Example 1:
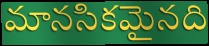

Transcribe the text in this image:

మానసికమైనది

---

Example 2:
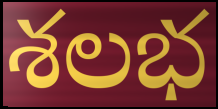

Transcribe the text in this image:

శలభ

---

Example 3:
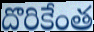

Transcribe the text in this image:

దొరికేంత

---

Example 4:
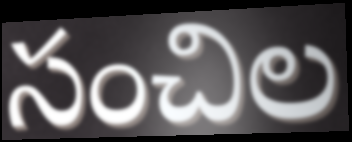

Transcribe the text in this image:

సంచిల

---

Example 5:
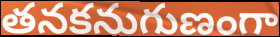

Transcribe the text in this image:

తనకనుగుణంగా